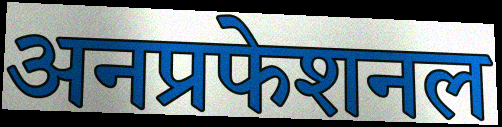
अनप्रफेशनल